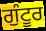
ਗੁੰਟੂਰ